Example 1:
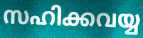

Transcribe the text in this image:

സഹിക്കവയ്യ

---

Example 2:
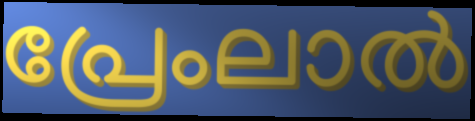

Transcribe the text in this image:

പ്രേംലാൽ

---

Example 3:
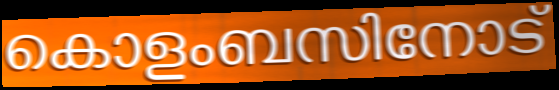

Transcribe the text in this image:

കൊളംബസിനോട്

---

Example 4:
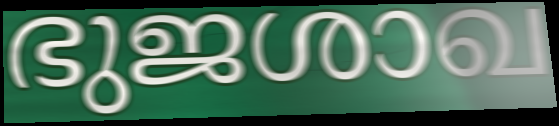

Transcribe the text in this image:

ഭുജശാഖ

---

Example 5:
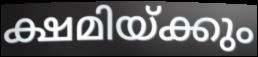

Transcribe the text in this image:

ക്ഷമിയ്ക്കും